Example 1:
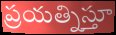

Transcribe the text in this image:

ప్రయత్నిస్తూ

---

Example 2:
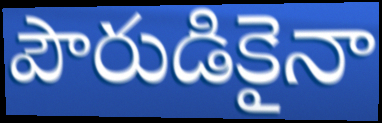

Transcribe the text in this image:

పౌరుడికైనా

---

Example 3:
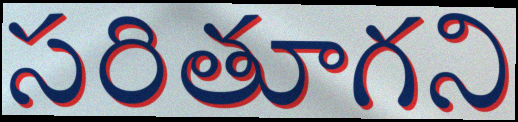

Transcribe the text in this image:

సరితూగని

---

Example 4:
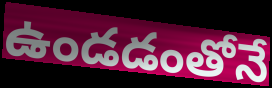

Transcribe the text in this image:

ఉండడంతోనే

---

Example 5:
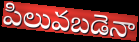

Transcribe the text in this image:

పిలువబడెనా